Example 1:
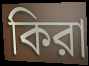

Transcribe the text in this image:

কিরা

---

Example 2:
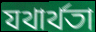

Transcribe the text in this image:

যথার্থতা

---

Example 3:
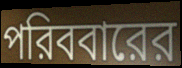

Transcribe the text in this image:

পরিববারের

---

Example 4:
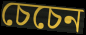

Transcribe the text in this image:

চেচেন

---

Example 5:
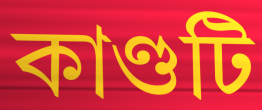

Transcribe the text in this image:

কাণ্ডটি